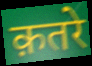
क़तरे